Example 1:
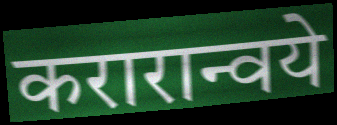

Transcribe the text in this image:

करारान्वये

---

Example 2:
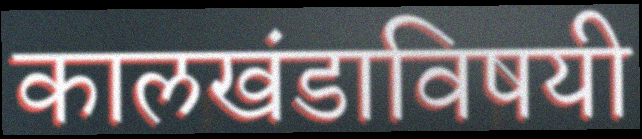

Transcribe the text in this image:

कालखंडाविषयी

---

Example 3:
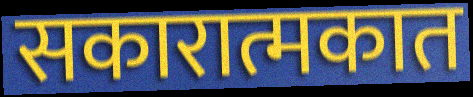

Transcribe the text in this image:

सकारात्मकात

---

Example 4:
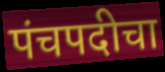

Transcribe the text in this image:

पंचपदीचा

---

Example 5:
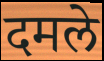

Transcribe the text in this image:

दमले